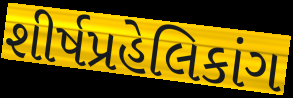
શીર્ષપ્રહેલિકાંગ